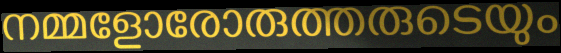
നമ്മളോരോരുത്തരുടെയും